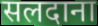
सलदाना